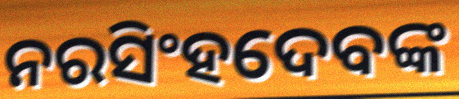
ନରସିଂହଦେବଙ୍କ